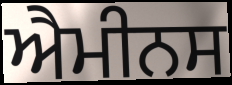
ਐਮੀਨਸ